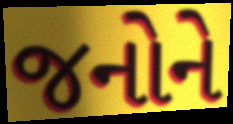
જનોને